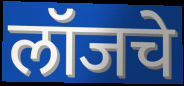
लॉजचे